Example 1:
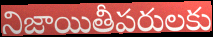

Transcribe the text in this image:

నిజాయితీపరులకు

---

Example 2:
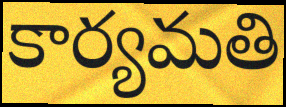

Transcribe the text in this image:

కార్యమతి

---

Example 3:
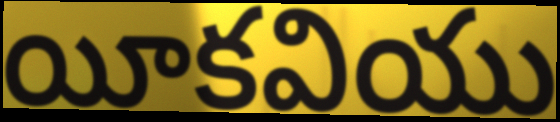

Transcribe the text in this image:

యీకవియు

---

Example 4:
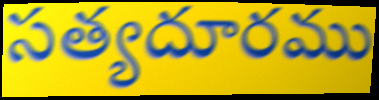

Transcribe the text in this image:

సత్యదూరము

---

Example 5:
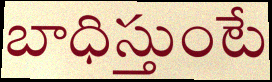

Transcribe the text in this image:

బాధిస్తుంటే